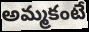
అమ్మకంటే